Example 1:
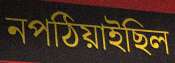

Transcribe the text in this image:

নপঠিয়াইছিল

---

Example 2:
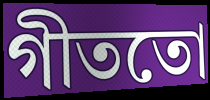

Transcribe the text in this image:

গীততো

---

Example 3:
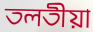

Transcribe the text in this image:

তলতীয়া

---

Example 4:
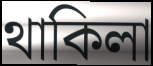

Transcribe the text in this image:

থাকিলা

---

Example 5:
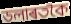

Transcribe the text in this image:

ডলাৰতকৈ